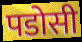
पडोसी